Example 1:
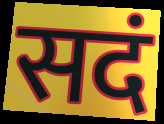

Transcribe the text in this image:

सदं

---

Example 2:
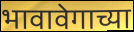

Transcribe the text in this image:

भावावेगाच्या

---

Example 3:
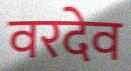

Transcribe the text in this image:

वरदेव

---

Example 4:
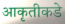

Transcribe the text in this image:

आकृतीकडे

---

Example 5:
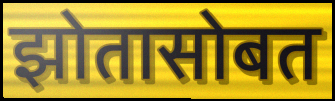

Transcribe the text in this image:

झोतासोबत